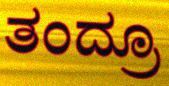
ತಂದ್ರೂ